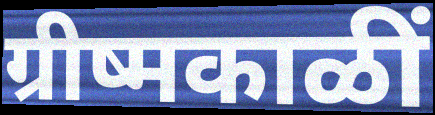
ग्रीष्मकाळीं